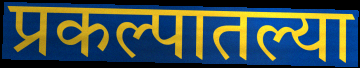
प्रकल्पातल्या